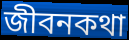
জীবনকথা